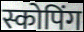
स्कोपिंग